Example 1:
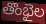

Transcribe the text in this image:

తొంభైల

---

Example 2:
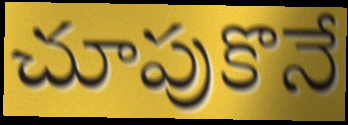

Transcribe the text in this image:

చూపుకొనే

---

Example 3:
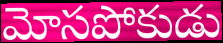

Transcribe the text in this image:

మోసపోకుడు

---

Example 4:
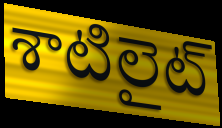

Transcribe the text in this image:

శాటిలైట్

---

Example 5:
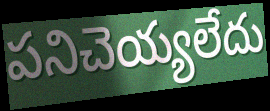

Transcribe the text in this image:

పనిచెయ్యలేదు